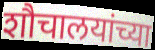
शौचालयांच्या